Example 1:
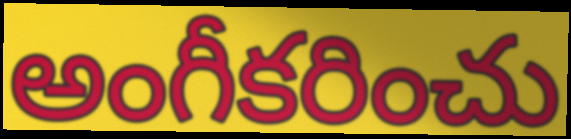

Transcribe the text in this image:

అంగీకరించు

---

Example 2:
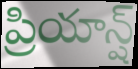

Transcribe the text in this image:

ప్రియాన్ష్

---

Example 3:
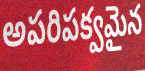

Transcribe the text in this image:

అపరిపక్వమైన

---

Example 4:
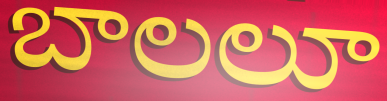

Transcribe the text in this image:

బాలలూ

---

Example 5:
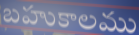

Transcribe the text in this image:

బహుకాలము